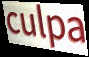
culpa